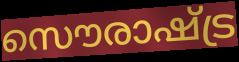
സൌരാഷ്ട്ര